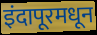
इंदापूरमधून